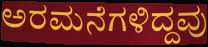
ಅರಮನೆಗಳಿದ್ದವು